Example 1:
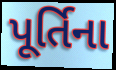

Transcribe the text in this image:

પૂર્તિના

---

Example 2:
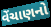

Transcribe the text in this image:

વેંચાણનો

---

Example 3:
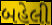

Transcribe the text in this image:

બહેલી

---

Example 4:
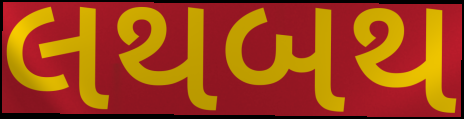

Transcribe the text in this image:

લથબથ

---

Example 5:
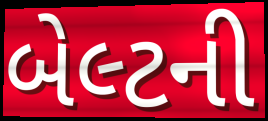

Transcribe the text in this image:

બેલ્ટની